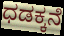
ಧಡಕ್ಕನೆ